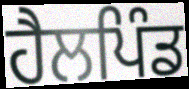
ਹੈਲਪਿੰਡ